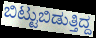
ಬಿಟ್ಟುಬಿಡುತ್ತಿದ್ದ